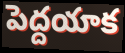
పెద్దయాక